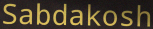
Sabdakosh